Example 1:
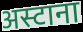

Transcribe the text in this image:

अस्टाना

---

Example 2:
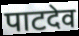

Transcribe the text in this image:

पाटदेव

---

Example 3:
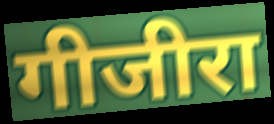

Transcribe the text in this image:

गीजीरा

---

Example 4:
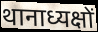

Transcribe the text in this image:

थानाध्यक्षों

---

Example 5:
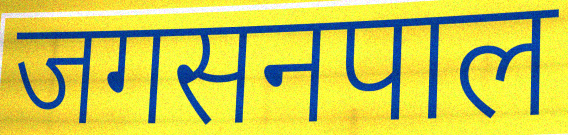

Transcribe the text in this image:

जगसनपाल